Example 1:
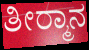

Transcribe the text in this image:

ತೀರ‍್ಮಾನ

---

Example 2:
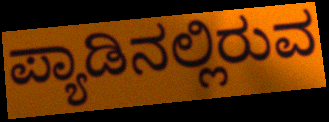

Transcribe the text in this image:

ಪ್ಯಾಡಿನಲ್ಲಿರುವ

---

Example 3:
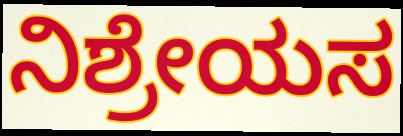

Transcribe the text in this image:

ನಿಶ್ರೇಯಸ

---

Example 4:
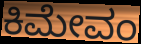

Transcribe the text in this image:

ಕಿಮೇವಂ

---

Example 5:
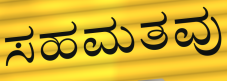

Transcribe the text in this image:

ಸಹಮತವು